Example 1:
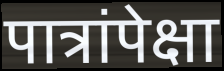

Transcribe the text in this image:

पात्रांपेक्षा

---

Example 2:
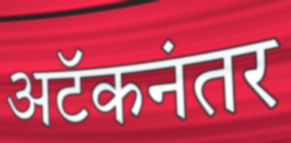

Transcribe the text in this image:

अटॅकनंतर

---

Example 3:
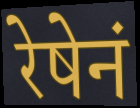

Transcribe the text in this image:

रेषेनं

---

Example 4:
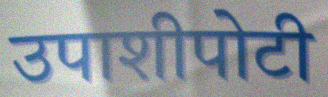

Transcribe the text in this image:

उपाशीपोटी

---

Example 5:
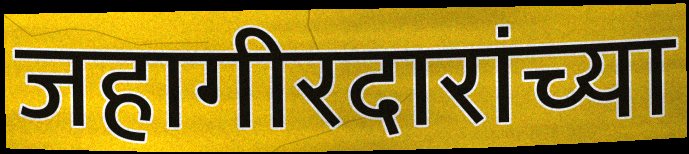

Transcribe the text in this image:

जहागीरदारांच्या